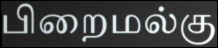
பிறைமல்கு